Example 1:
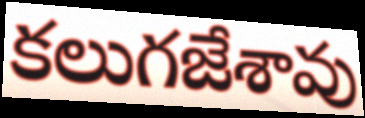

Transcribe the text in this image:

కలుగజేశావు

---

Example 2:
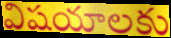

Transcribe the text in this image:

విషయాలకు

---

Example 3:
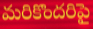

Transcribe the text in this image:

మరికొందరిపై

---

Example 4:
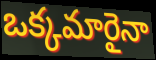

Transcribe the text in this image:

ఒక్కమారైనా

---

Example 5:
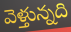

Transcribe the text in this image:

వెళ్తున్నది